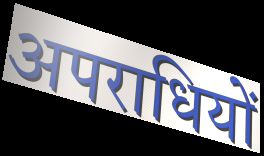
अपराधियों